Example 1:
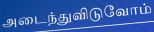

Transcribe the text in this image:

அடைந்துவிடுவோம்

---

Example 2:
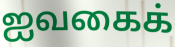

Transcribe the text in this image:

ஐவகைக்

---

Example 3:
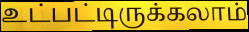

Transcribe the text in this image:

உட்பட்டிருக்கலாம்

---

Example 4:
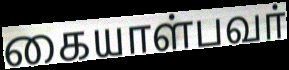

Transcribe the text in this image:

கையாள்பவர்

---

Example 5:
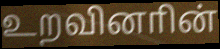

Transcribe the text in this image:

உறவினரின்